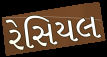
રેસિયલ